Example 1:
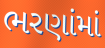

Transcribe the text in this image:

ભરણાંમાં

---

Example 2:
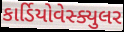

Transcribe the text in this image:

કાર્ડિયોવેસ્ક્યુલર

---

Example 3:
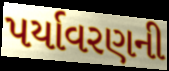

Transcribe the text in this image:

પર્યાવરણની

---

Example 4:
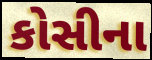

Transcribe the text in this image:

કોસીના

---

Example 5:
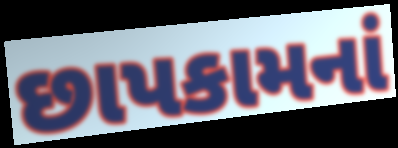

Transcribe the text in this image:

છાપકામનાં